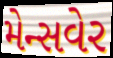
મેન્સવેર